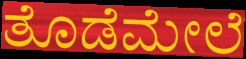
ತೊಡೆಮೇಲೆ